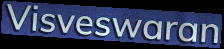
Visveswaran